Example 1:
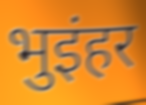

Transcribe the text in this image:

भुइंहर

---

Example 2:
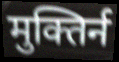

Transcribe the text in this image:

मुक्तिर्न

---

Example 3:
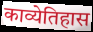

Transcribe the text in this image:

काव्येतिहास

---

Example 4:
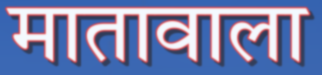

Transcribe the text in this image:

मातावाला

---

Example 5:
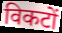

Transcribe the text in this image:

विकटों